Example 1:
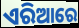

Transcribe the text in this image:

ଏରିଆରେ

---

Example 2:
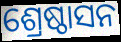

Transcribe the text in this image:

ଶ୍ରେଷ୍ଠାସନ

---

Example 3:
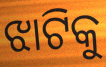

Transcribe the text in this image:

ଝାଟିକୁ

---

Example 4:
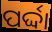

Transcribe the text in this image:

ପର୍ଦ୍ଦା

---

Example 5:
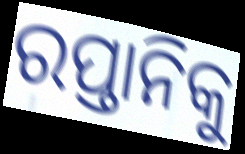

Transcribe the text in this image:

ରପ୍ତାନିକୁ